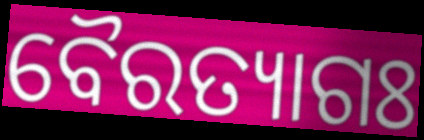
ବୈରତ୍ୟାଗଃ